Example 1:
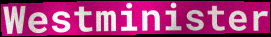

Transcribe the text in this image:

Westminister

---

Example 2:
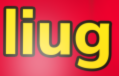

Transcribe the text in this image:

liug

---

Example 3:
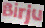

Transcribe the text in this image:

Birju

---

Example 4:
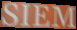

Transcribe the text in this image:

SIEM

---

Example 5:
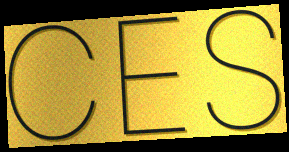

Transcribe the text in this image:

CES